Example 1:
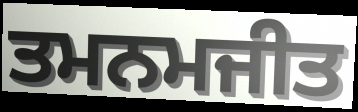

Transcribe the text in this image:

ਤਮਨਮਜੀਤ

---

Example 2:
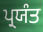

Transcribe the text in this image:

ਪ੍ਰਯੰਤ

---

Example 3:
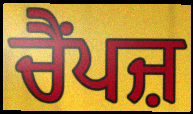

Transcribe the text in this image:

ਚੈਂਪਜ਼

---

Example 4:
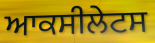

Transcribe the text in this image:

ਆਕਸੀਲੇਟਸ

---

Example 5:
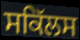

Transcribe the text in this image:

ਸਕਿੱਲਸ